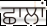
ਛਾਲਾਂ